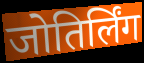
जोतिर्लिंग